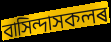
বাসিন্দাসকলৰ